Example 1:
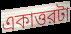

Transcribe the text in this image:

একাত্তরটা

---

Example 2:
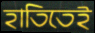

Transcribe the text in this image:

হাতিতেই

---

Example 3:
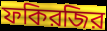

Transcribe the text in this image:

ফকিরজির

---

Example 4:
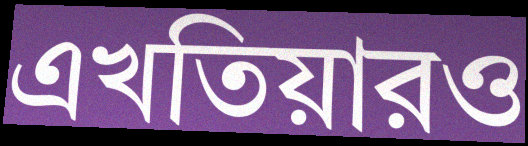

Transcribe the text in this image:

এখতিয়ারও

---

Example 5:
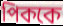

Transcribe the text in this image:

পিককে